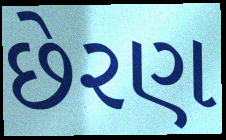
છેરણ